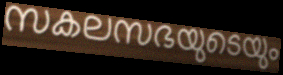
സകലസഭയുടെയും